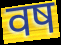
वष